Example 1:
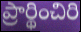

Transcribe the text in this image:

ప్రార్థించిరి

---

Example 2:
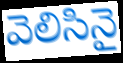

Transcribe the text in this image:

వెలిసినై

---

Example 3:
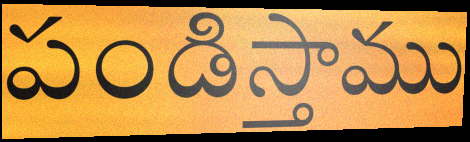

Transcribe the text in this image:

పండిస్తాము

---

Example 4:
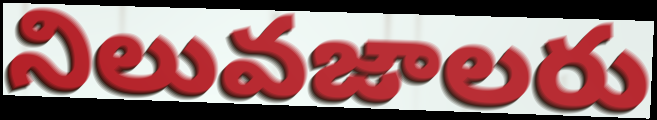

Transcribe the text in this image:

నిలువజాలరు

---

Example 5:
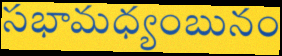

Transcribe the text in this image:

సభామధ్యంబునం